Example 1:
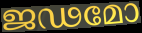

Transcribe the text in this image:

ജഢമോ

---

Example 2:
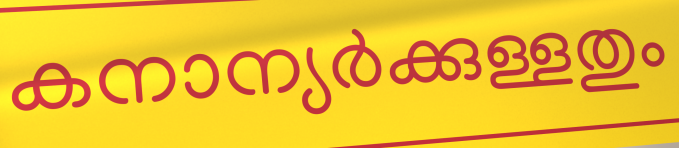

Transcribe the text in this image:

കനാന്യർക്കുള്ളതും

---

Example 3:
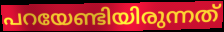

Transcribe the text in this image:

പറയേണ്ടിയിരുന്നത്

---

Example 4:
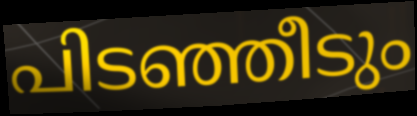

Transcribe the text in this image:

പിടഞ്ഞീടും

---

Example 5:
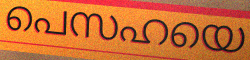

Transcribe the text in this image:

പെസഹയെ